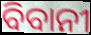
ବିବାନୀ